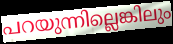
പറയുന്നില്ലെങ്കിലും